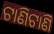
ଟାଣିଟାଣି